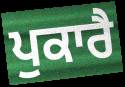
ਪੁਕਾਰੈ